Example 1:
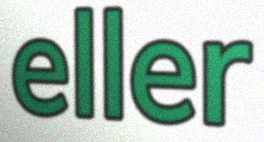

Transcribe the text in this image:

eller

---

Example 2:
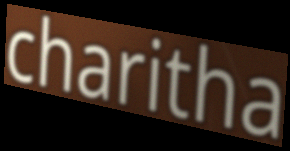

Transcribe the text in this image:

charitha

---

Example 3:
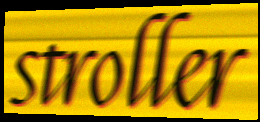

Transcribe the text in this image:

stroller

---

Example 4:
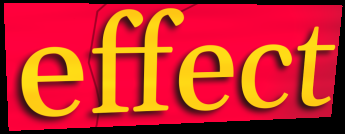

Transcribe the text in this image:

effect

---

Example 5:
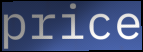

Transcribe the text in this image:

price